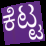
ಕೆಟ್ಟ